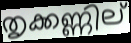
തൃക്കണ്ണില്